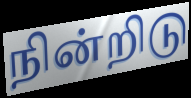
நின்றிடு